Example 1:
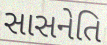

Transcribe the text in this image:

સાસનેતિ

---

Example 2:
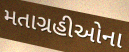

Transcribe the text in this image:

મતાગ્રહીઓના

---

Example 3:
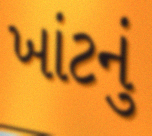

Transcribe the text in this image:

ખાંટનું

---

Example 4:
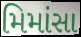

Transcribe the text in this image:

મિમાંસા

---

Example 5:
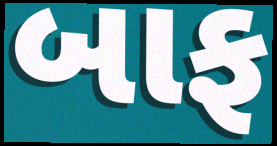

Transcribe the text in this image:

બાફ